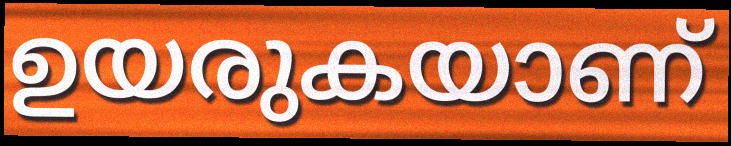
ഉയരുകയാണ്